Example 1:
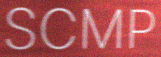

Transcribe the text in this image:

SCMP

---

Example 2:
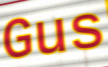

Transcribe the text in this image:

Gus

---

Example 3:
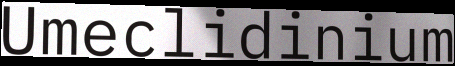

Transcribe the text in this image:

Umeclidinium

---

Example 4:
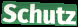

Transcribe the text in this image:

Schutz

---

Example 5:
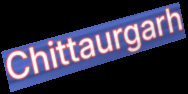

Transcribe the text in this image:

Chittaurgarh